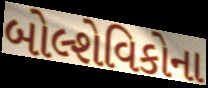
બોલ્શેવિકોના